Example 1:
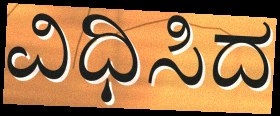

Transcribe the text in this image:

ವಿಧಿಸಿದ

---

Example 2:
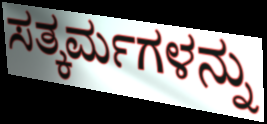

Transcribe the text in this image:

ಸತ್ಕರ್ಮಗಳನ್ನು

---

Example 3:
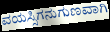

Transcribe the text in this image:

ವಯಸ್ಸಿಗನುಗುಣವಾಗಿ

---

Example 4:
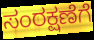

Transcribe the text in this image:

ಸಂರಕ್ಷಣೆಗೆ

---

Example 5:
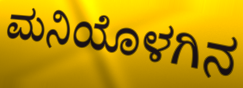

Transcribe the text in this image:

ಮನಿಯೊಳಗಿನ